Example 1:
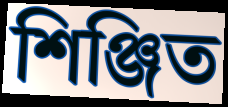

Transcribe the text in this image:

শিঞ্জিত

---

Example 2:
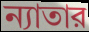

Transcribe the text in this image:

ন্যাতার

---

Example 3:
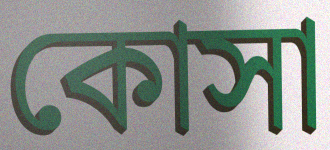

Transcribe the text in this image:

কোসা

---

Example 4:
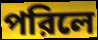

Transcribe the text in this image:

পরিলে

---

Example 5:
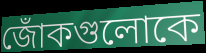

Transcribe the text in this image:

জোঁকগুলোকে